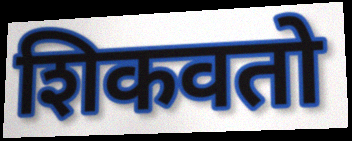
शिकवतो